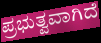
ಪ್ರಭುತ್ವವಾಗಿದೆ